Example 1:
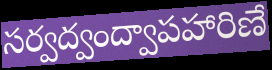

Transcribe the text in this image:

సర్వద్వంద్వాపహారిణే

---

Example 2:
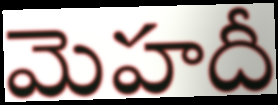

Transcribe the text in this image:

మెహదీ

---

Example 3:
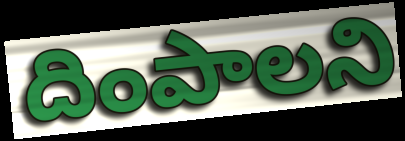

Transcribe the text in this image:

దింపాలని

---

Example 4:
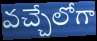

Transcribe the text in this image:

వచ్చేలోగా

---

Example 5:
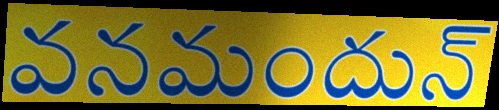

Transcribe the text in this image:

వనమందున్